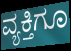
ವ್ಯಕ್ತಿಗೂ